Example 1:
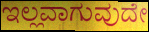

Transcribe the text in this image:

ಇಲ್ಲವಾಗುವುದೇ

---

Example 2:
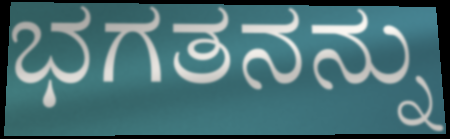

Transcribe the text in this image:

ಭಗತನನ್ನು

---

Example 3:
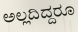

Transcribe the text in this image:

ಅಲ್ಲದಿದ್ದರೂ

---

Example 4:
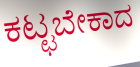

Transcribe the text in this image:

ಕಟ್ಟಬೇಕಾದ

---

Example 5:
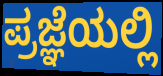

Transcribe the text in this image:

ಪ್ರಜ್ಞೆಯಲ್ಲಿ